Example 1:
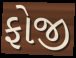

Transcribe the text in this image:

ફોજી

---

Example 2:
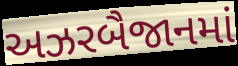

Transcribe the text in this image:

અઝરબૈજાનમાં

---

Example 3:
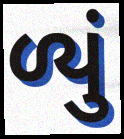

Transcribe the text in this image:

ળ્યું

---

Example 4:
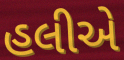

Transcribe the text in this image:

હલીએ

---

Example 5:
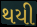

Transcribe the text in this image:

થયી